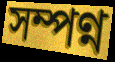
সম্পণ্ন